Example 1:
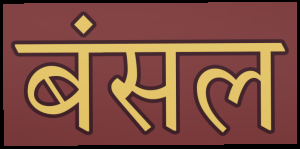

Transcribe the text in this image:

बंसल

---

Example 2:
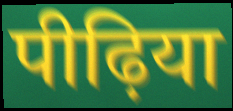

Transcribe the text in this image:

पीढ़िया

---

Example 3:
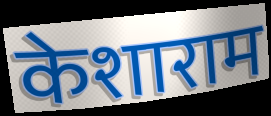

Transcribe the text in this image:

केशाराम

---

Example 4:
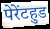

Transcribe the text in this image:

पेरेंटहुड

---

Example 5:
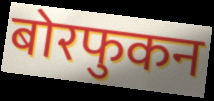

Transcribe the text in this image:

बोरफुकन